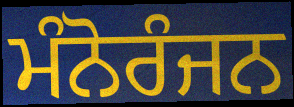
ਮੰਨੋਰੰਜਨ